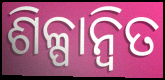
ଶିଳ୍ପାନ୍ବିତ